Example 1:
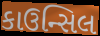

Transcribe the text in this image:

કાઉન્સિલ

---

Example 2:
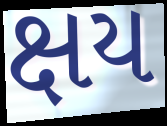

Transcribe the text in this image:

ક્ષય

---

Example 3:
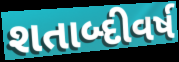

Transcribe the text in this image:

શતાબ્દીવર્ષ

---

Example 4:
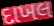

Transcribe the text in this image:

દાખલ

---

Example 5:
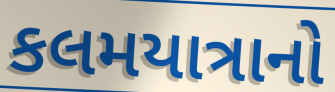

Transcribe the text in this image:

કલમયાત્રાનો